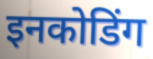
इनकोडिंग